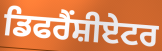
ਡਿਫਰੈਂਸ਼ੀਏਟਰ